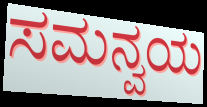
ಸಮನ್ವಯ